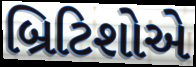
બ્રિટિશોએ